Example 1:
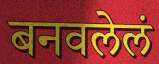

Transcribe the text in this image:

बनवलेलं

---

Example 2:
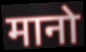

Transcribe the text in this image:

मानो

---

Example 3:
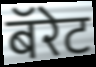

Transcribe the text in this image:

बॅरेट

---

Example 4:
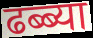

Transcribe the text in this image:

ढब्ब्या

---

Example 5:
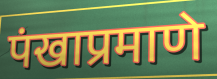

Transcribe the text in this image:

पंखाप्रमाणे